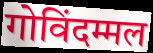
गोविंदम्मल